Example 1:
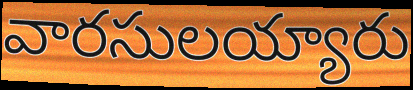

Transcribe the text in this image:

వారసులయ్యారు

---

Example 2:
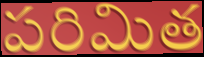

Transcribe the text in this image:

పరిమిత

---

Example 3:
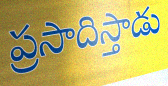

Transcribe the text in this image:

ప్రసాదిస్తాడు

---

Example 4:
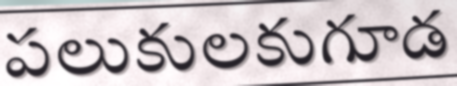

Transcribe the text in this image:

పలుకులకుగూడ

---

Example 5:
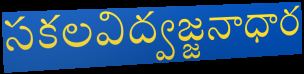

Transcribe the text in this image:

సకలవిద్వజ్జనాధార